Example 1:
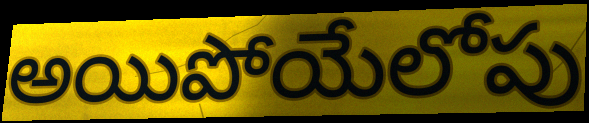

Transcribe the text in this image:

అయిపోయేలోపు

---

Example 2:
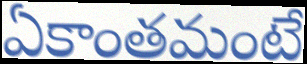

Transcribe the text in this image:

ఏకాంతమంటే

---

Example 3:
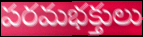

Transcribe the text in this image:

పరమభక్తులు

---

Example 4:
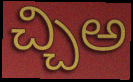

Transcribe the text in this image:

చ్చిఅ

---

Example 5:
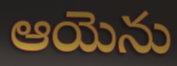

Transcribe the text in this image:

ఆయెను